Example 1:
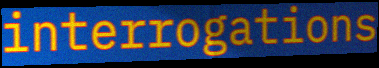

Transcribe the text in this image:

interrogations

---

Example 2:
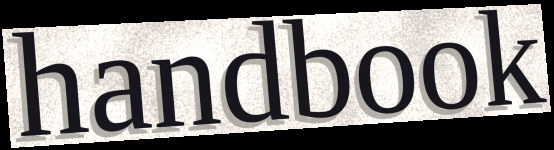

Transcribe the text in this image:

handbook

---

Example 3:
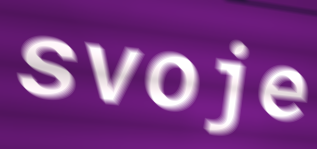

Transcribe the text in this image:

svoje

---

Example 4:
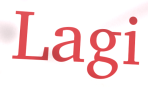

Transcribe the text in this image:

Lagi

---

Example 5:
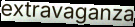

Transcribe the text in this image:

extravaganza